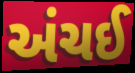
અંચઈ